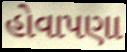
હોવાપણા